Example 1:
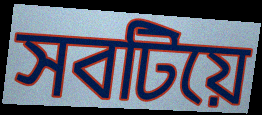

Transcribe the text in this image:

সবটিয়ে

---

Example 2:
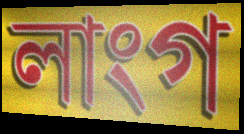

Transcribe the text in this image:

লাংগ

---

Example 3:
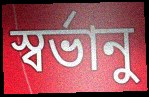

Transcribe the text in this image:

স্বর্ভানু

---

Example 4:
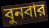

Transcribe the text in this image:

বুনবার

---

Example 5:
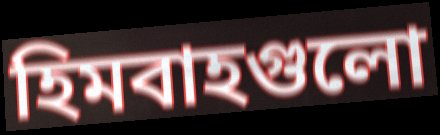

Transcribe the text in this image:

হিমবাহগুলো